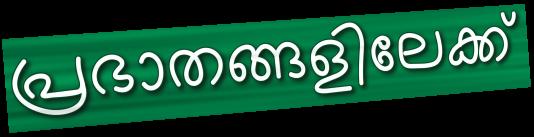
പ്രഭാതങ്ങളിലേക്ക്